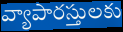
వ్యాపారస్తులకు